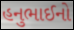
હનુભાઈનો